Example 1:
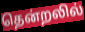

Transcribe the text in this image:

தென்றலில்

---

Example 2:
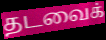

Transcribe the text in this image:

தடவைக்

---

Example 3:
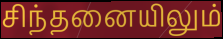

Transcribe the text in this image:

சிந்தனையிலும்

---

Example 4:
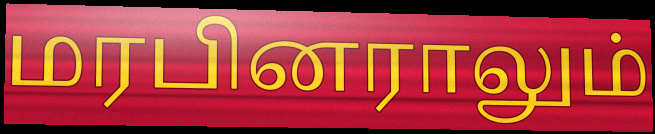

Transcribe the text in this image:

மரபினராலும்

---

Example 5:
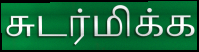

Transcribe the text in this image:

சுடர்மிக்க